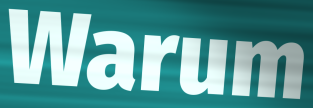
Warum